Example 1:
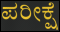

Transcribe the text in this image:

ಪರೀಕ್ಷೆ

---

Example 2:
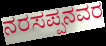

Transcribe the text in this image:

ನರಸಪ್ಪನವರ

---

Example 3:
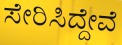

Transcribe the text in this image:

ಸೇರಿಸಿದ್ದೇವೆ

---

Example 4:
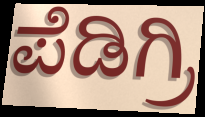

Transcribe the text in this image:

ಪೆಡಿಗ್ರಿ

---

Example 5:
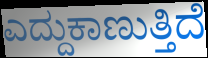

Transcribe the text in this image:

ಎದ್ದುಕಾಣುತ್ತಿದೆ